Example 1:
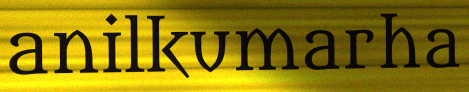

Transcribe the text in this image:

anilkumarha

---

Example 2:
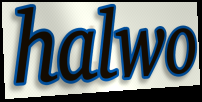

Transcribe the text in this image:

halwo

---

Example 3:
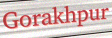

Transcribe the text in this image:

Gorakhpur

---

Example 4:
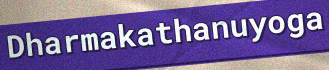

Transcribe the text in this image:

Dharmakathanuyoga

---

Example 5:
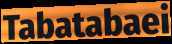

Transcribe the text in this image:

Tabatabaei